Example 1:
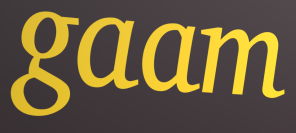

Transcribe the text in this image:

gaam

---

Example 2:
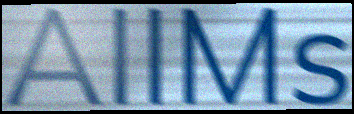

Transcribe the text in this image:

AIIMs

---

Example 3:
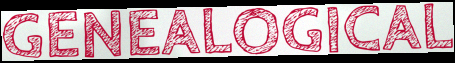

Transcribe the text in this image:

GENEALOGICAL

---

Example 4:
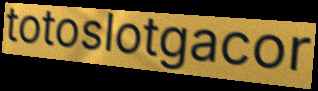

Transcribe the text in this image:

totoslotgacor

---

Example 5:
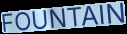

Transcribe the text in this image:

FOUNTAIN